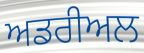
ਅਡਰੀਅਲ